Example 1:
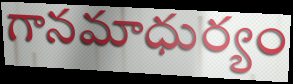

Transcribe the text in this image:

గానమాధుర్యం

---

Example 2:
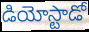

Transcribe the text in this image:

డియోస్టాడో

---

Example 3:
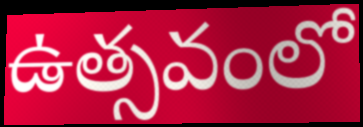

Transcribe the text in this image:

ఉత్సవంలో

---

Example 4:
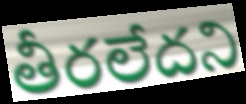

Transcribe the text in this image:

తీరలేదని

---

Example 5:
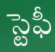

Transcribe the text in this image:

స్టెఫీ